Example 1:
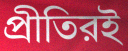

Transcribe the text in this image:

প্রীতিরই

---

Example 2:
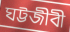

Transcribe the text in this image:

ঘট্টজীবী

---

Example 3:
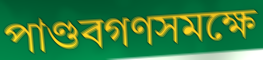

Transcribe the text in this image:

পাণ্ডবগণসমক্ষে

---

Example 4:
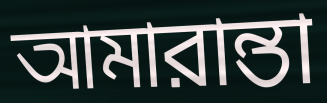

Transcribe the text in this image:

আমারান্তা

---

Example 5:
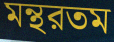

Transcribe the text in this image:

মন্থরতম